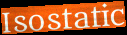
Isostatic